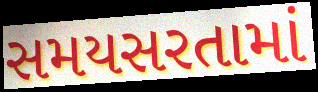
સમયસરતામાં